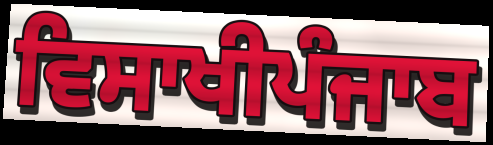
ਵਿਸਾਖੀਪੰਜਾਬ